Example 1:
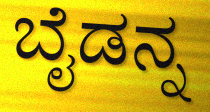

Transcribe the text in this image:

ಬೈಡನ್ನ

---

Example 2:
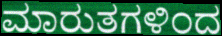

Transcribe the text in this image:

ಮಾರುತಗಳಿಂದ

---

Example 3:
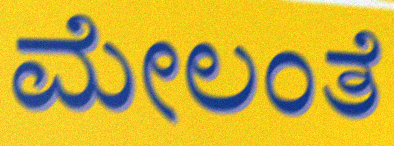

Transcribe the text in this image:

ಮೇಲಂತೆ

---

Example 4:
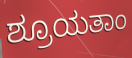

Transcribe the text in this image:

ಶ್ರೂಯತಾಂ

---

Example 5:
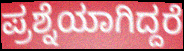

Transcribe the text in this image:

ಪ್ರಶ್ನೆಯಾಗಿದ್ದರೆ